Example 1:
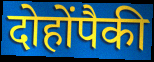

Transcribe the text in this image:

दोहोंपैकी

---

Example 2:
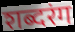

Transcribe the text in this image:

शब्दरंग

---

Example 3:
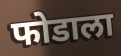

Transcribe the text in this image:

फोडाला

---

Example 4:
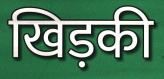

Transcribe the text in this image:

खिड़की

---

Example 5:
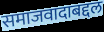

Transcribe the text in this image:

समाजवादाबद्दल